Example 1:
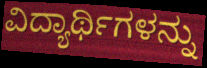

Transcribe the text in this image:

ವಿದ್ಯಾರ್ಥಿಗಳನ್ನು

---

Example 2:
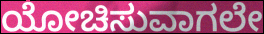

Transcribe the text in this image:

ಯೋಚಿಸುವಾಗಲೇ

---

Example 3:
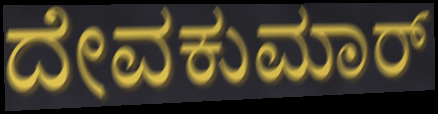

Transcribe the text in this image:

ದೇವಕುಮಾರ್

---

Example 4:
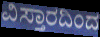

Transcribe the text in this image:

ವಿಸ್ತಾರದಿಂದ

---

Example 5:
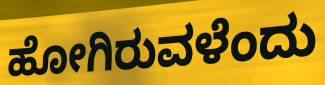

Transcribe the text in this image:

ಹೋಗಿರುವಳೆಂದು